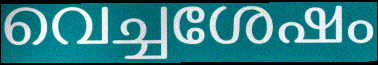
വെച്ചശേഷം